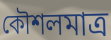
কৌশলমাত্র